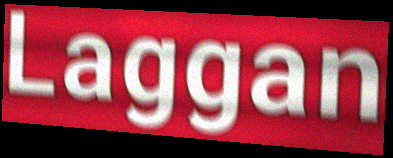
Laggan